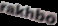
rakhbo